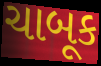
ચાબૂક